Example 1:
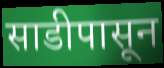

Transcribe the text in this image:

साडीपासून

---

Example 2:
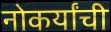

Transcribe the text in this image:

नोकर्यांची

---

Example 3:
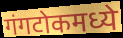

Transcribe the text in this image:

गंगटोकमध्ये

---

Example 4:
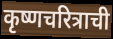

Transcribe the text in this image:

कृष्णचरित्राची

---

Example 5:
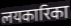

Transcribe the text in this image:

लयकारिका